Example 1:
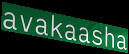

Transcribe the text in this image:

avakaasha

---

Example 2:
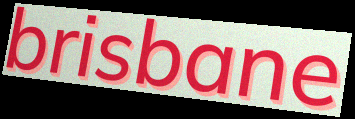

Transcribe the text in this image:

brisbane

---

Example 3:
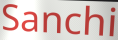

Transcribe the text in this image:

Sanchi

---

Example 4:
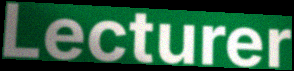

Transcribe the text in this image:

Lecturer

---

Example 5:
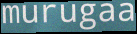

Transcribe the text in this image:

murugaa